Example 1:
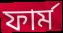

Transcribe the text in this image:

ফাৰ্ম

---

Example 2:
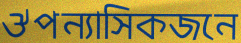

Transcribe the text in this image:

ঔপন্যাসিকজনে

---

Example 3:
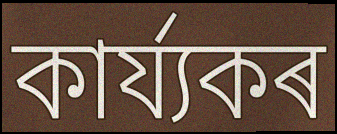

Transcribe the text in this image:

কাৰ্য্যকৰ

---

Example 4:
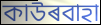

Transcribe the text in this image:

কাউৰবাহা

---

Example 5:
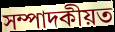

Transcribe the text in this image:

সম্পাদকীয়ত